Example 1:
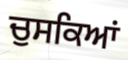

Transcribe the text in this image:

ਚੁਸਕਿਆਂ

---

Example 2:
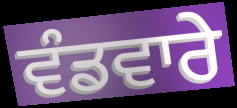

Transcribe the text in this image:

ਵੰਡਵਾਰੇ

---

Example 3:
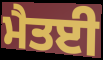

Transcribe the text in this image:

ਮੈਤਈ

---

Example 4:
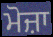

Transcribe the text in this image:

ਮੋਜ਼ਾ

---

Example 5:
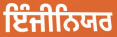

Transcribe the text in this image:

ਇੰਜੀਨਿਯਰ